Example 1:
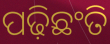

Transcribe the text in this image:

ପଢ଼ିଛଂତି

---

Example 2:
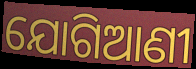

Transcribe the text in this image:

ଯୋଗିଆଣୀ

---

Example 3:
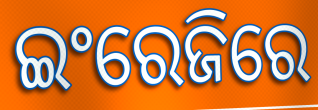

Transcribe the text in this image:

ଇଂରେଜିରେ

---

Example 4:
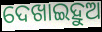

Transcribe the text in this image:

ଦେଖାଇହୁଅ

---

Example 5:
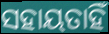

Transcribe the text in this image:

ସହାୟତାହିଁ